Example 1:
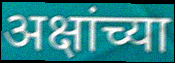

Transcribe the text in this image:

अक्षांच्या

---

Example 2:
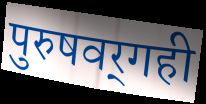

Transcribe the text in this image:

पुरुषवर्गही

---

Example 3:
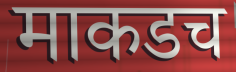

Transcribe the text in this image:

माकडच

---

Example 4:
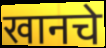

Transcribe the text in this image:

खानचे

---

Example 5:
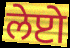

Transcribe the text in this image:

लेप्टो